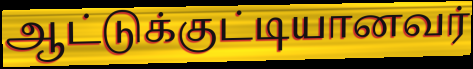
ஆட்டுக்குட்டியானவர்